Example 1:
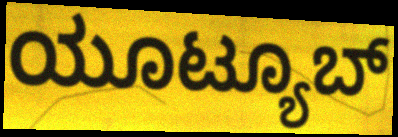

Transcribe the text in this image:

ಯೂಟ್ಯೂಬ್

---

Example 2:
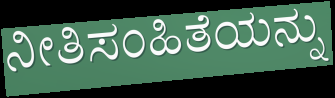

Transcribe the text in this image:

ನೀತಿಸಂಹಿತೆಯನ್ನು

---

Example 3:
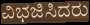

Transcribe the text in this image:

ವಿಭಜಿಸಿದರು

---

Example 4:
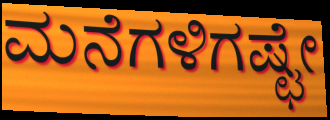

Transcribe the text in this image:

ಮನೆಗಳಿಗಷ್ಟೇ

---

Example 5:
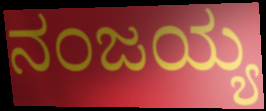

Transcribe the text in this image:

ನಂಜಯ್ಯ